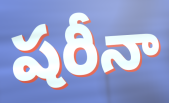
షరీనా